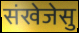
संखेजेसु